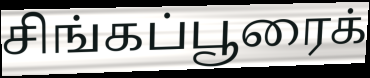
சிங்கப்பூரைக்